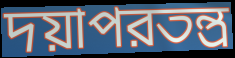
দয়াপরতন্ত্র